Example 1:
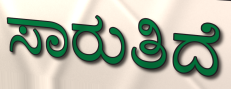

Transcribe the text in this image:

ಸಾರುತಿದೆ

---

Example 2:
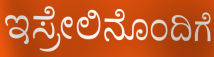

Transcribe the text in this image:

ಇಸ್ರೇಲಿನೊಂದಿಗೆ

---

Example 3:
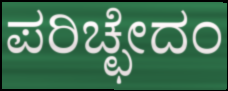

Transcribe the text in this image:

ಪರಿಚ್ಛೇದಂ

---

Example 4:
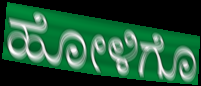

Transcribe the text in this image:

ಹೋಳಿಗೊ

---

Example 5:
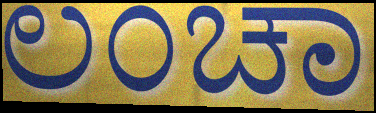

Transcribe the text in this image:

ಲಂಚಾ